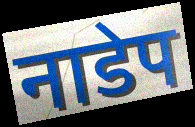
नाडेप